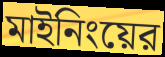
মাইনিংয়ের